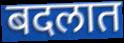
बदलात